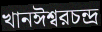
খানঈশ্বরচন্দ্র